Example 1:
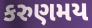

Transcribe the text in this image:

કરુણમય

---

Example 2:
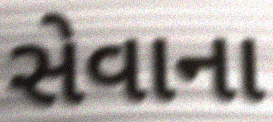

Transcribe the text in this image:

સેવાના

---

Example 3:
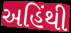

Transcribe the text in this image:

અહિંથી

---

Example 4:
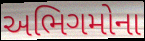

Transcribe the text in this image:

અભિગમોના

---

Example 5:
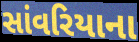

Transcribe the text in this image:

સાંવરિયાના